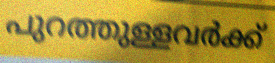
പുറത്തുള്ളവർക്ക്